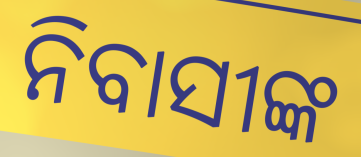
ନିବାସୀଙ୍କ